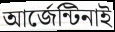
আর্জেন্টিনাই